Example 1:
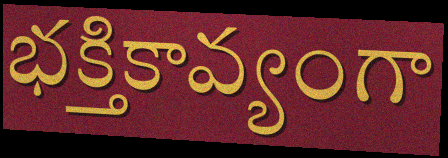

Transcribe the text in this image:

భక్తికావ్యంగా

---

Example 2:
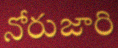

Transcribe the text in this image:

నోరుజారి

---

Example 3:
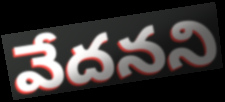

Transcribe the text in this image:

వేదనని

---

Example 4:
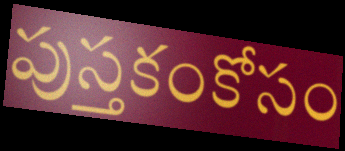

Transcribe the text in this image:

పుస్తకంకోసం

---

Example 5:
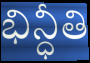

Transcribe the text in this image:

భిన్ధీతి